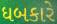
ધબકારે